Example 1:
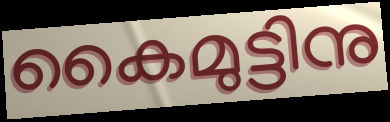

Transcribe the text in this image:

കൈമുട്ടിനു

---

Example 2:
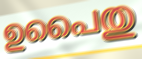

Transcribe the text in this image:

ഉപൈതു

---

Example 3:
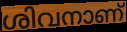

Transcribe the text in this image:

ശിവനാണ്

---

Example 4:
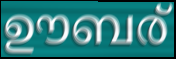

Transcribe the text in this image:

ഊബര്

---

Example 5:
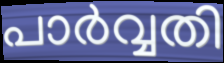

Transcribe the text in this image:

പാർവ്വതി